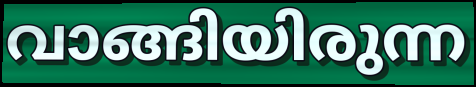
വാങ്ങിയിരുന്ന